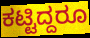
ಕಟ್ಟಿದ್ದರೂ